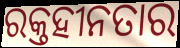
ରକ୍ତହୀନତାର